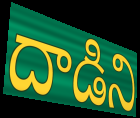
దాడిని